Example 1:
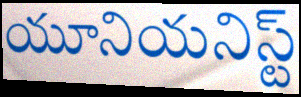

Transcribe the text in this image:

యూనియనిస్ట్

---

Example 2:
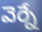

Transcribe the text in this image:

వెర్నే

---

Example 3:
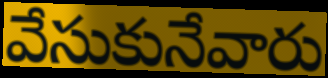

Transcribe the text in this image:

వేసుకునేవారు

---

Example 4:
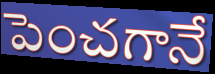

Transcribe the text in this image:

పెంచగానే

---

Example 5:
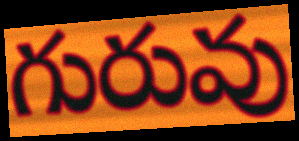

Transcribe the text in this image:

గురువు